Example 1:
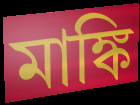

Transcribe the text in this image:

মাঙ্কি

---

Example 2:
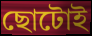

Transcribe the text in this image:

ছোটোই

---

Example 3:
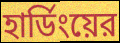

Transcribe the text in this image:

হার্ডিংয়ের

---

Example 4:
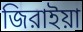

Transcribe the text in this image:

জিরাইয়া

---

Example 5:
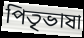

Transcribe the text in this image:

পিতৃভাষা